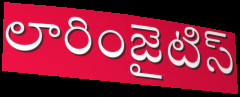
లారింజైటిస్